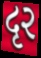
દૃર